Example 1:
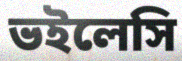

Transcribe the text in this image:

ভইলেসি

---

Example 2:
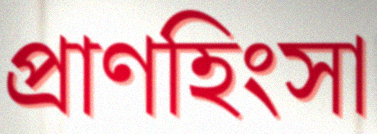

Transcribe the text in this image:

প্রাণহিংসা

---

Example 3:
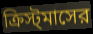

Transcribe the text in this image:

ক্রিস্ট্‌মাসের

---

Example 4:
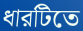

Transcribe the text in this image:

ধারটিতে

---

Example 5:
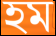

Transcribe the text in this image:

হম